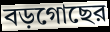
বড়গোছের